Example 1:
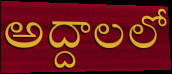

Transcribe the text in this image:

అద్దాలలో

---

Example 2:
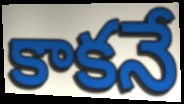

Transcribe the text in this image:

కాకనే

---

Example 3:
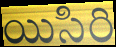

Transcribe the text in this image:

యిసిరి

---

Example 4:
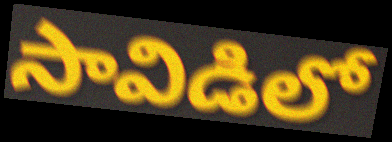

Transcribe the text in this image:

సావిడిలో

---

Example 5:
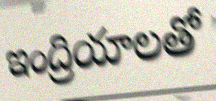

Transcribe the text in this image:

ఇంద్రియాలతో